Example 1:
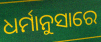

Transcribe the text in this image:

ଧର୍ମାନୁସାରେ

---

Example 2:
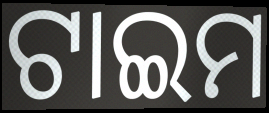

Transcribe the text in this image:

ଟାଇମ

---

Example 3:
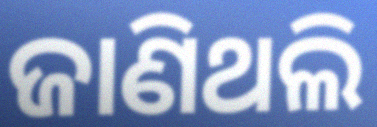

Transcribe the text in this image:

ଜାଣିଥଲି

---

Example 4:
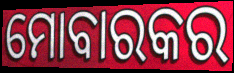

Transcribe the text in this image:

ମୋବାରକର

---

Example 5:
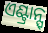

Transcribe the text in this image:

ଏଣ୍ଟ୍ରାନ୍ସ୍